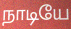
நாடியே